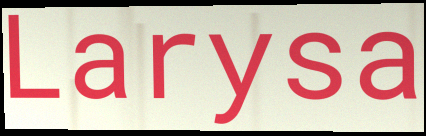
Larysa